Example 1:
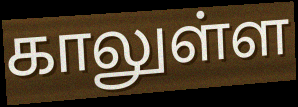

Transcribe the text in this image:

காலுள்ள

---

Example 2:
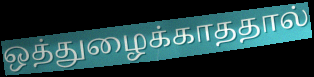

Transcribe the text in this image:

ஒத்துழைக்காததால்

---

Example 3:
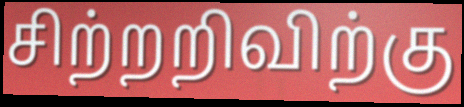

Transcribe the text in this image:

சிற்றறிவிற்கு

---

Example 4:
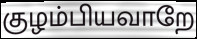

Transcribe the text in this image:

குழம்பியவாறே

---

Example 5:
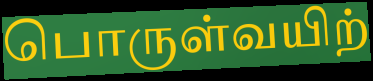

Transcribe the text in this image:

பொருள்வயிற்